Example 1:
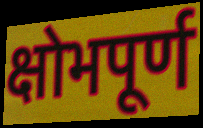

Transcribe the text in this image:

क्षोभपूर्ण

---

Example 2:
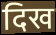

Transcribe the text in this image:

दिख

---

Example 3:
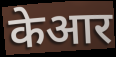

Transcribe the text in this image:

केआर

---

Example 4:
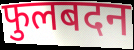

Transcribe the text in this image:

फुलबदन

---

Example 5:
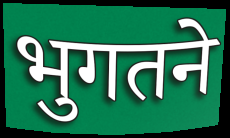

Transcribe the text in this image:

भुगतने